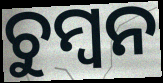
ଚୁମ୍ବନ